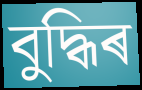
বুদ্ধিৰ